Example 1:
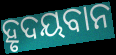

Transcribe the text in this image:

ହୃଦୟବାନ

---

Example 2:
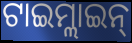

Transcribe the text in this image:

ଟାଇମ୍ଲାଇନ୍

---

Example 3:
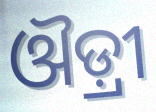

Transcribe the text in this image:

ଔଡ଼୍ରୀ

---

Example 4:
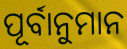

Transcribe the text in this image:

ପୂର୍ବାନୁମାନ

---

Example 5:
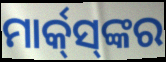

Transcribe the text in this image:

ମାର୍କ୍‌ସ୍‌ଙ୍କର